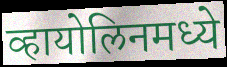
व्हायोलिनमध्ये